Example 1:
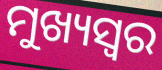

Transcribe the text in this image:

ମୁଖ୍ୟସ୍ୱର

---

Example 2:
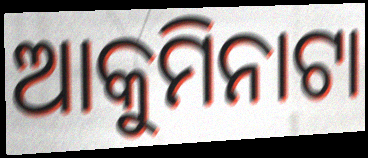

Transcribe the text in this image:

ଆକୁମିନାଟା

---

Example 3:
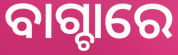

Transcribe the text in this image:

ବାଗ୍ଚାରେ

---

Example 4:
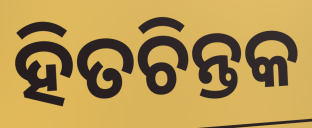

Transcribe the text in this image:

ହିତଚିନ୍ତକ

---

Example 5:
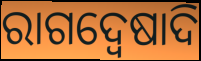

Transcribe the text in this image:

ରାଗଦ୍ୱେଷାଦି